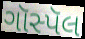
ગૉસ્પૅલ